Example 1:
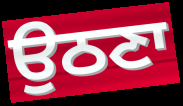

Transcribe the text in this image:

ਉਠਣਾ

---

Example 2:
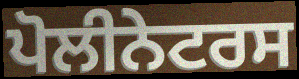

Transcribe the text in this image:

ਪੋਲੀਨੇਟਰਸ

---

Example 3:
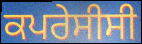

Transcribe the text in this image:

ਕਪਰੇਸੀਸੀ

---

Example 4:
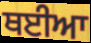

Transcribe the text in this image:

ਥਈਆ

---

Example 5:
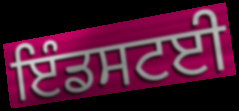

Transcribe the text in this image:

ਇੰਡਸਟਈ